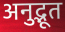
अनुद्भूत